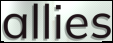
allies